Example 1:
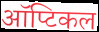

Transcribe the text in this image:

ऑप्टिकल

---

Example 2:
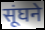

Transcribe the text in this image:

सूंघने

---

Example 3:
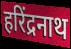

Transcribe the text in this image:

हरिंद्रनाथ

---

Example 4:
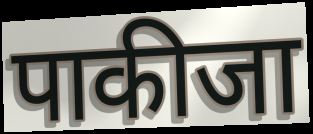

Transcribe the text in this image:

पाकीजा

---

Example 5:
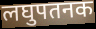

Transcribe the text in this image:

लघुपतनक